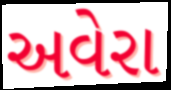
અવેરા